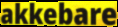
akkebare